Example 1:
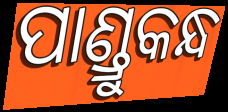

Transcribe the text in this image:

ପାଣ୍ଡ୍ରୁକନ୍ଧ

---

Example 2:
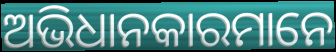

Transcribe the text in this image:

ଅଭିଧାନକାରମାନେ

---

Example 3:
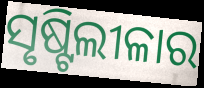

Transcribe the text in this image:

ସୃଷ୍ଟିଲୀଳାର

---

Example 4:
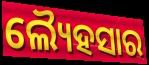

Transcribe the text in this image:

ଲ୍ୟୈହସାର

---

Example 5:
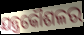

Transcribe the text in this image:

ଯନ୍ତ୍ରକୌଶଳର